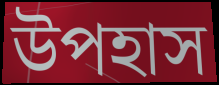
উপহাস